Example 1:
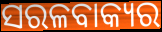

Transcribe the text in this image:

ସରଳବାକ୍ୟର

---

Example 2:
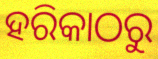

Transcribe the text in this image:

ହରିକାଠରୁ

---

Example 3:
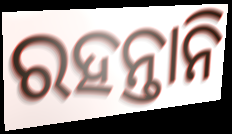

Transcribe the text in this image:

ରହନ୍ତାନି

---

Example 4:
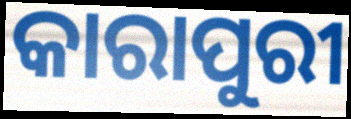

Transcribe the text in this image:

କାରାପୁରୀ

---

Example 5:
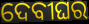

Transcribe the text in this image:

ଦେବୀଘର